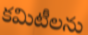
కమిటీలను